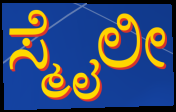
ಸ್ಮೈಲೀ